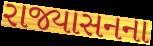
રાજ્યાસનના